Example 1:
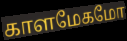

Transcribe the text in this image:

காளமேகமோ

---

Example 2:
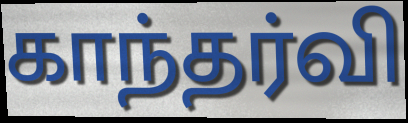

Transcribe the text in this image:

காந்தர்வி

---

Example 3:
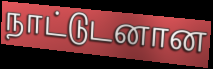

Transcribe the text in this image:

நாட்டுடனான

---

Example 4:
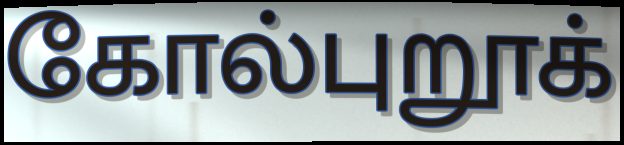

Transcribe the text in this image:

கோல்புறூக்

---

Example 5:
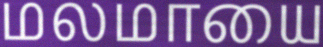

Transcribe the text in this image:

மலமாயை